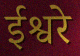
ईश्वरे